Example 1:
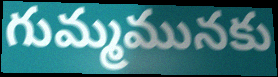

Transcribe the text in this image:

గుమ్మమునకు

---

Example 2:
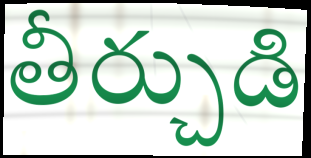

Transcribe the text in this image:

తీర్చుడి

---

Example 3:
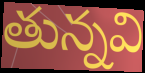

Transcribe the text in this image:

తున్నవి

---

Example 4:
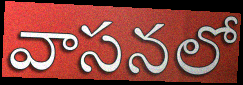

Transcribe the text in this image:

వాసనలో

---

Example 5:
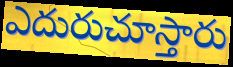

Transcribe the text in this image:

ఎదురుచూస్తారు